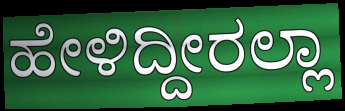
ಹೇಳಿದ್ದೀರಲ್ಲಾ